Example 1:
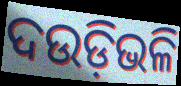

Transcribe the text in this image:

ଦଉଡ଼ିଭଳି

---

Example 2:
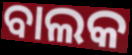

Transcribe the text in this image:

ବାଲକ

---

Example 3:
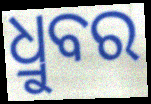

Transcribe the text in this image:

ଧ୍ରୁବର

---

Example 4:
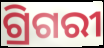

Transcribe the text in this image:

ଗ୍ରିଗରୀ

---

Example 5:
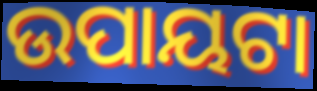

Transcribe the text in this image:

ଉପାୟଟା